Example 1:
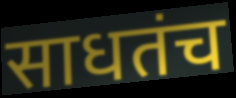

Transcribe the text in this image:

साधतंच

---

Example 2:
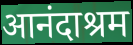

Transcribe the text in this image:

आनंदाश्रम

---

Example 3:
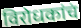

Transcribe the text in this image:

विरोधकांचं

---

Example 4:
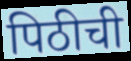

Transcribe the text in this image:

पिठीची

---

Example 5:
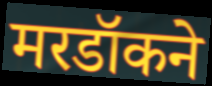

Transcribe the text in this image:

मरडॉकने